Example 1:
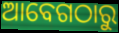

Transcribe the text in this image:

ଆବେଗଠାରୁ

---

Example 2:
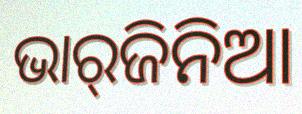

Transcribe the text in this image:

ଭାର୍‌ଜିନିଆ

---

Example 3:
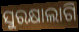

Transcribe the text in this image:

ସୁରକ୍ଷାଲାଗି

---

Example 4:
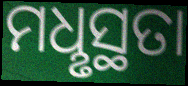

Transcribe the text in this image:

ମଧୢସ୍ଥତା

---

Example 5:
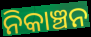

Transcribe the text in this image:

ନିକାଞ୍ଚନ